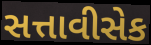
સત્તાવીસેક